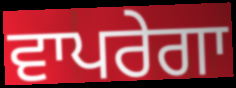
ਵਾਪਰੇਗਾ